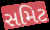
સમિટ